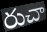
రుచా